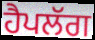
ਹੈਪਲੱਗ